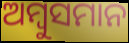
ଅମ୍ବୁସମାନ